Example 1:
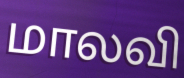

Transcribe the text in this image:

மாலவி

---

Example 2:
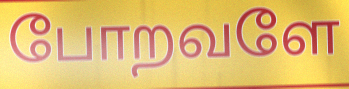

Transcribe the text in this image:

போறவளே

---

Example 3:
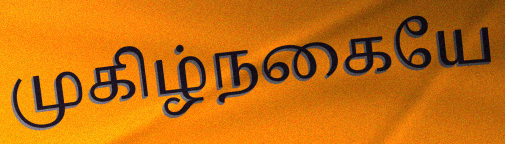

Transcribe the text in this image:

முகிழ்நகையே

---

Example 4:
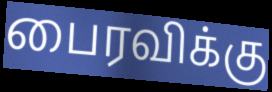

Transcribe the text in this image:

பைரவிக்கு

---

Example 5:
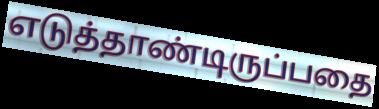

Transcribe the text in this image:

எடுத்தாண்டிருப்பதை